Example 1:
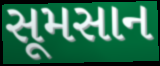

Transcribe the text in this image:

સૂમસાન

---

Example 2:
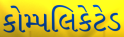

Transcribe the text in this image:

કોમ્પલિકેટેડ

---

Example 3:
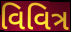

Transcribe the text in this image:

વિવિત્ર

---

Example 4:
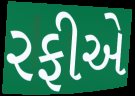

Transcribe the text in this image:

રફીએ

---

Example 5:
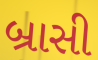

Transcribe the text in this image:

બ્રાસી